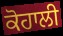
ਕੋਹਾਲੀ